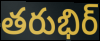
తరుభిర్